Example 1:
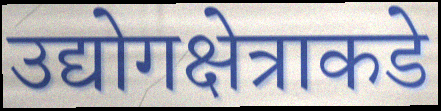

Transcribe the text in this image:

उद्योगक्षेत्राकडे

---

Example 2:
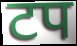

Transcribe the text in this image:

टप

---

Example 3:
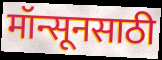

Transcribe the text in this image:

मॉन्सूनसाठी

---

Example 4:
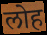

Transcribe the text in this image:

लोह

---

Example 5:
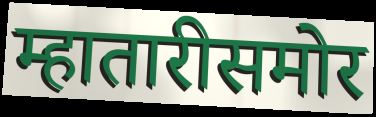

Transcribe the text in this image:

म्हातारीसमोर